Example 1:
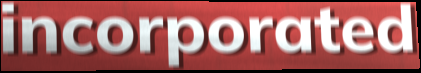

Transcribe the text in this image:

incorporated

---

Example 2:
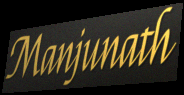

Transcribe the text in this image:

Manjunath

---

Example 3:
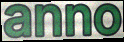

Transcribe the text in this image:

anno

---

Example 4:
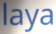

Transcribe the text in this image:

laya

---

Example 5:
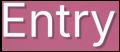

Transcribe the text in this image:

Entry